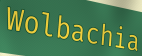
Wolbachia